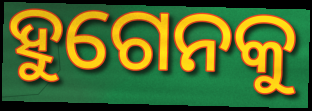
ହୁଗେନକୁ